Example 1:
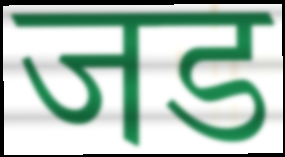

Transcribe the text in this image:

जड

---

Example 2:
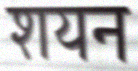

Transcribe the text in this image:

शयन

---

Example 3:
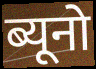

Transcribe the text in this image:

ब्यूनो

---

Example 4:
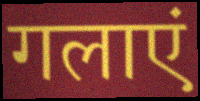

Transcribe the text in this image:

गलाएं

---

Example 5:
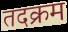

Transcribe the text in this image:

तदक्रम